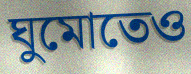
ঘুমোতেও